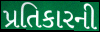
પ્રતિકારની